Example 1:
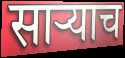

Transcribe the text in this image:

साऱ्याच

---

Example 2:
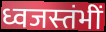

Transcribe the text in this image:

ध्वजस्तंभीं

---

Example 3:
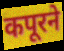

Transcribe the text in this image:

कपूरने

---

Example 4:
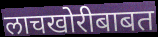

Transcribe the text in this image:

लाचखोरीबाबत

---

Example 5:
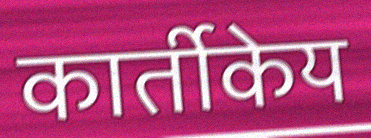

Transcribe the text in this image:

कार्तीकेय